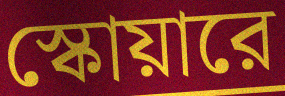
স্কোয়ারে